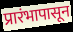
प्रारंभापासून